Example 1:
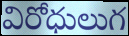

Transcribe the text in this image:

విరోధులుగ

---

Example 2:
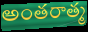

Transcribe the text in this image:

అంతరాత్మ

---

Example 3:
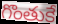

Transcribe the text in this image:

గొంతుకే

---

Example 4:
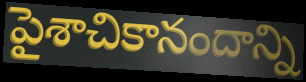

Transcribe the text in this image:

పైశాచికానందాన్ని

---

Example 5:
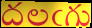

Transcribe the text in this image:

దలఁగు